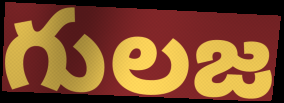
గులజ